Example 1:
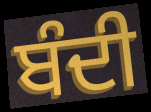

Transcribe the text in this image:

ਬੰਦੀ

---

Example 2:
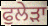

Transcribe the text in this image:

ਫੁਲੇੜਾ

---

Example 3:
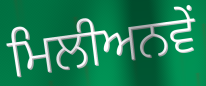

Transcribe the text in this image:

ਮਿਲੀਅਨਵੇਂ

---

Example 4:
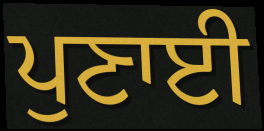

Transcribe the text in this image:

ਪੁਣਾਈ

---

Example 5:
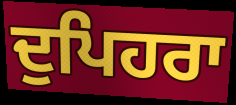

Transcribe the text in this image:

ਦੁਪਿਹਰਾ